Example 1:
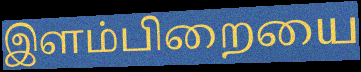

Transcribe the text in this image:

இளம்பிறையை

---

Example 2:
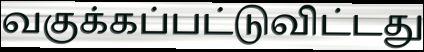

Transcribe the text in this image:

வகுக்கப்பட்டுவிட்டது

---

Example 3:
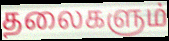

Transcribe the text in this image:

தலைகளும்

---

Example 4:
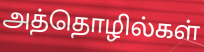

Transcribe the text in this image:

அத்தொழில்கள்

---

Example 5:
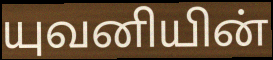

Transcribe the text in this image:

யுவனியின்